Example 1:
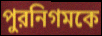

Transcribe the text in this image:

পুরনিগমকে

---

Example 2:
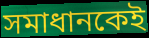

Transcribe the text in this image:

সমাধানকেই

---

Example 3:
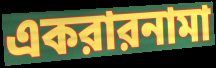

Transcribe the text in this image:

একরারনামা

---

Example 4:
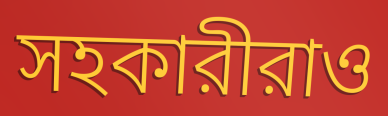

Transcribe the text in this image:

সহকারীরাও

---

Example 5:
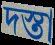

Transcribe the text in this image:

দস্তা